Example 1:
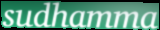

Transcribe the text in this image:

sudhamma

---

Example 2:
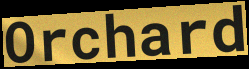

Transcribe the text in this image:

Orchard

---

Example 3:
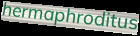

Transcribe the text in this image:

hermaphroditus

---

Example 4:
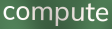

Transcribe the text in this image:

compute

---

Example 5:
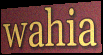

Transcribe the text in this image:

wahia